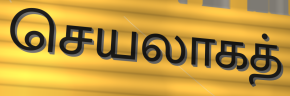
செயலாகத்